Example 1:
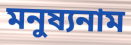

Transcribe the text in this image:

মনুষ্যনাম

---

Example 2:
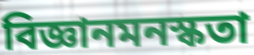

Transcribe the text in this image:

বিজ্ঞানমনস্কতা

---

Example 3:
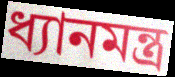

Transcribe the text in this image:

ধ্যানমন্ত্র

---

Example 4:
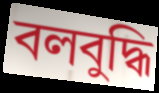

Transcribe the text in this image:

বলবুদ্ধি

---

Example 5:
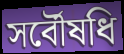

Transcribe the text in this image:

সর্বৌষধি